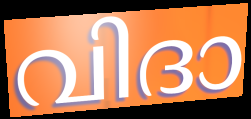
വിദാ